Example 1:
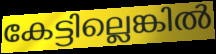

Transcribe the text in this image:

കേട്ടില്ലെങ്കിൽ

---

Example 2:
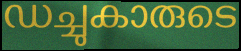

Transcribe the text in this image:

ഡച്ചുകാരുടെ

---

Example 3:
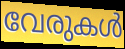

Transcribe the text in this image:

വേരുകൾ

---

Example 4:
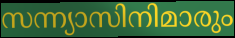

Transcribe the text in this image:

സന്ന്യാസിനിമാരും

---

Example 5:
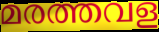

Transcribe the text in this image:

മരത്തവള